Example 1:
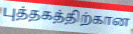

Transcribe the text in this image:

புத்தகத்திற்கான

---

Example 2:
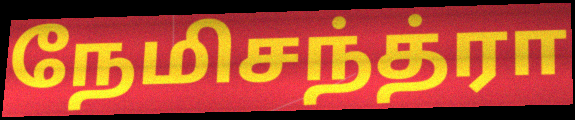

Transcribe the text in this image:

நேமிசந்த்ரா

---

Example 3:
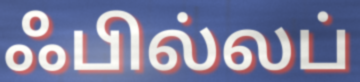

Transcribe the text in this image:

ஃபில்லப்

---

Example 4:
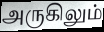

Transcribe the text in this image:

அருகிலும்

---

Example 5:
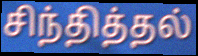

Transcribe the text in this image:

சிந்தித்தல்